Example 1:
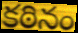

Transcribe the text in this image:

కఠినం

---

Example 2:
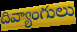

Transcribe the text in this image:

దివ్యాంగులు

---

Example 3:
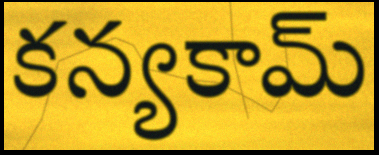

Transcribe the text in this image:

కన్యకామ్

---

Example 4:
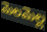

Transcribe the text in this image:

మెలమెల్ల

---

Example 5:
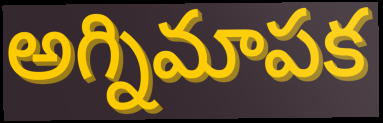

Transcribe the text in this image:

అగ్నిమాపక